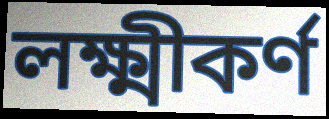
লক্ষ্মীকর্ণ